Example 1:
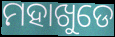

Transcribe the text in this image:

ମହାଖୁଡେ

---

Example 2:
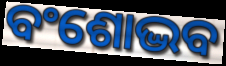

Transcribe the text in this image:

ବଂଶୋଦ୍ଭବ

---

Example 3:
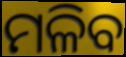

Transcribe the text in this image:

ମଳିବ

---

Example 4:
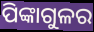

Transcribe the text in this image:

ପିଙ୍କାଗୁଳର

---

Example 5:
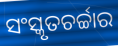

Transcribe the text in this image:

ସଂସ୍କୃତଚର୍ଚ୍ଚାର